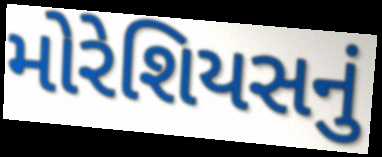
મોરેશિયસનું